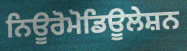
ਨਿਊਰੋਮੋਡਿਊਲੇਸ਼ਨ